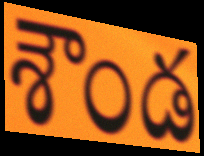
శౌండ